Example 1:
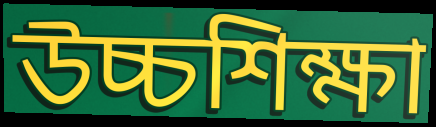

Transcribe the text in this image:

উচ্চশিক্ষা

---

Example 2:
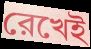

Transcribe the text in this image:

রেখেই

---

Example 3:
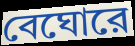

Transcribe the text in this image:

বেঘোরে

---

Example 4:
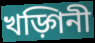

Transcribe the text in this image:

খড়্গিনী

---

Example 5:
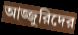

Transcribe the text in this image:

আজ্জুরিদের